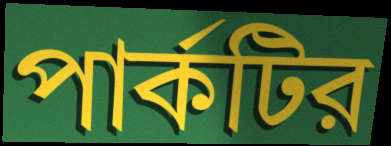
পার্কটির